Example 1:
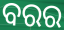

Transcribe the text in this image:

ବରର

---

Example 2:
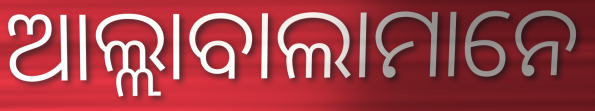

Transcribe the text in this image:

ଆଲ୍ଲାବାଲାମାନେ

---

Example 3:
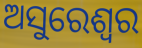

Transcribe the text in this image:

ଅସୁରେଶ୍ୱର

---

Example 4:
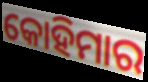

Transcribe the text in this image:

କୋହିମାର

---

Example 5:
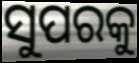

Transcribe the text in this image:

ସୁପରକୁ